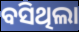
ବସିଥିଲା